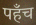
पहँच